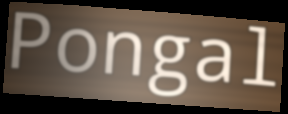
Pongal